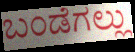
ಬಂಡೆಗಲ್ಲು